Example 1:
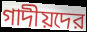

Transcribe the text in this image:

গাদীয়দের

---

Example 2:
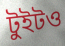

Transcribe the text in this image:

টুইটও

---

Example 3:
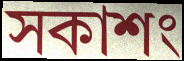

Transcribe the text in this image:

সকাশং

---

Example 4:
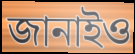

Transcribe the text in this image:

জানাইও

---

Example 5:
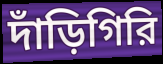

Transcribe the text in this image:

দাঁড়িগিরি